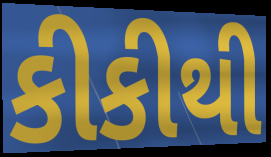
કીકીથી